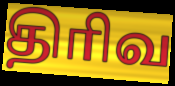
திரிவ